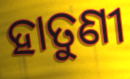
ହାତୁଣୀ